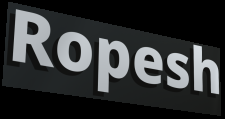
Ropesh